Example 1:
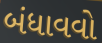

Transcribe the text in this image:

બંધાવવો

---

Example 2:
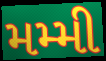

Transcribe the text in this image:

મમ્મી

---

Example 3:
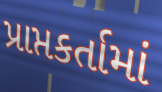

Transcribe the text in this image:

પ્રાપ્તકર્તામાં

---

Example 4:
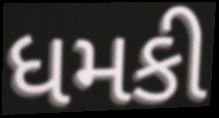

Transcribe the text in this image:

ધમકી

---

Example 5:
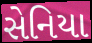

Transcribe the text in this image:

સેનિયા